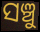
ସଞ୍ଚୁ